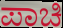
ಪಾಚಿ